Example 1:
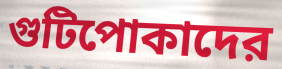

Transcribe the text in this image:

গুটিপোকাদের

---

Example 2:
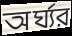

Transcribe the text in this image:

অর্ঘ্যর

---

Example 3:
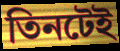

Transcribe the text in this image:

তিনটেই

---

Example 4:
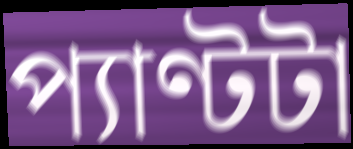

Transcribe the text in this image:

প্যাণ্টটা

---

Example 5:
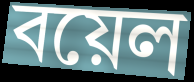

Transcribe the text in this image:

বয়েল